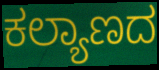
ಕಲ್ಯಾಣದ